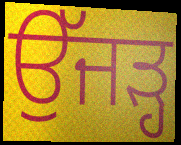
ਉੱਜੜ੍ਹ